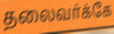
தலைவர்க்கே